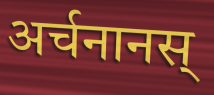
अर्चनानस्